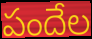
పందేల